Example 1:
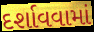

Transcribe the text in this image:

દર્શાવવામાં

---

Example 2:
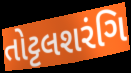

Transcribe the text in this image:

તોટ્ટલશરંગિ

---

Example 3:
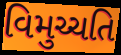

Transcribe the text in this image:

વિમુચ્ચતિ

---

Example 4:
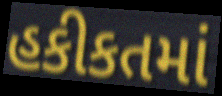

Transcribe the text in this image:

હકીકતમાં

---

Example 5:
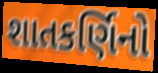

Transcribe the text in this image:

શાતકર્ણિનો